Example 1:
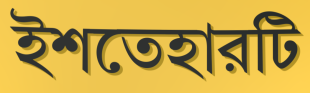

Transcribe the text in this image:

ইশতেহারটি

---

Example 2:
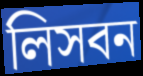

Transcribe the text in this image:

লিসবন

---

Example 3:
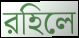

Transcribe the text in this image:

রহিলে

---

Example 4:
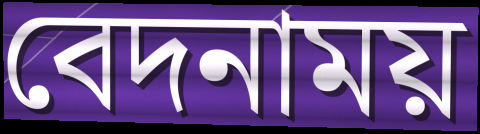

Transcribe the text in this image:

বেদনাময়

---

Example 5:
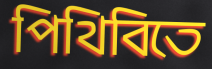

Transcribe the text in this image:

পিথিবিতে